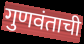
गुणवंताची